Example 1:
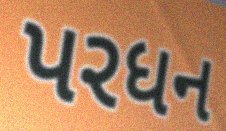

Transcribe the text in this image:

પરધન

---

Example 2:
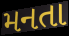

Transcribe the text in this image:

મનતા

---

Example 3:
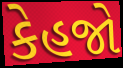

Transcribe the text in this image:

કેહજો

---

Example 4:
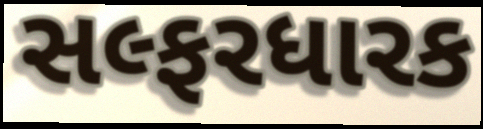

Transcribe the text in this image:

સલ્ફરધારક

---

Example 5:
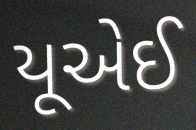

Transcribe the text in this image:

યૂએઈ